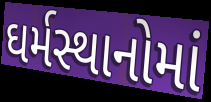
ઘર્મસ્થાનોમાં